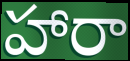
హారా